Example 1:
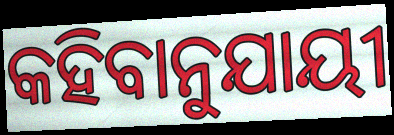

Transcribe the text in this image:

କହିବାନୁଯାୟୀ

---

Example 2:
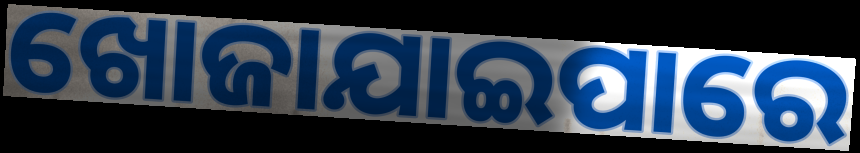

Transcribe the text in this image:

ଖୋଜାଯାଇପାରେ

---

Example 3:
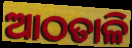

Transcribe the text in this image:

ଆଠତାଳି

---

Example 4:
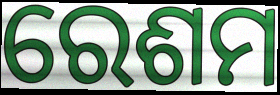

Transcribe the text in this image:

ରେଶମ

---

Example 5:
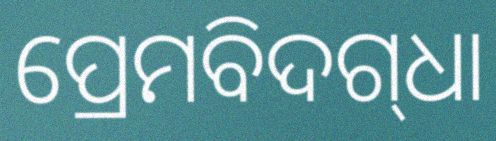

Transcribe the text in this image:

ପ୍ରେମବିଦଗ୍‍ଧା